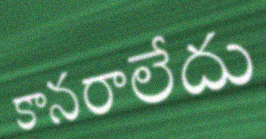
కానరాలేదు